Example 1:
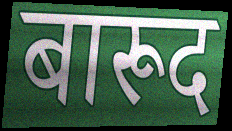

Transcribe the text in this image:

बारूद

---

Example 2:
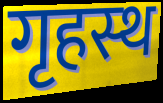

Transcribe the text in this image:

गृहस्‍थ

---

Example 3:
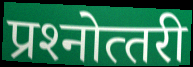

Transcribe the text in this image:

प्रश्‍नोत्‍तरी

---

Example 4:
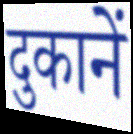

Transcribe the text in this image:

दुकानें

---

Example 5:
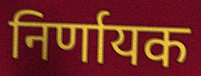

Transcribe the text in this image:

निर्णायक